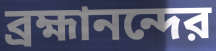
ব্রহ্মানন্দের